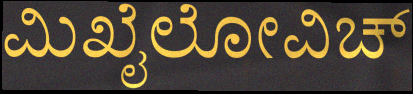
ಮಿಖೈಲೋವಿಚ್